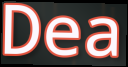
Dea